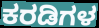
ಕರಡಿಗಳ